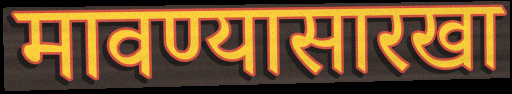
मावण्यासारखा